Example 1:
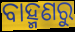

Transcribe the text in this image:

ବାହ୍ମଣରୁ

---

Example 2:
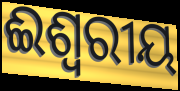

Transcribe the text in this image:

ଈଶ୍ବରୀୟ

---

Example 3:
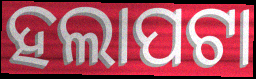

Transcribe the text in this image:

ହଲାପଟା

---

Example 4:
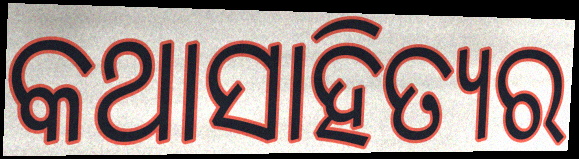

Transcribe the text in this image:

କଥାସାହିତ୍ୟର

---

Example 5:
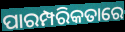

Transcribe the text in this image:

ପାରମ୍ପରିକତାରେ